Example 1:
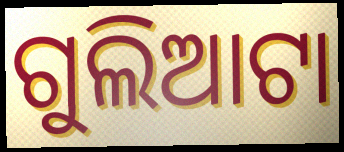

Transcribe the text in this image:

ଗୁଲିଆଟା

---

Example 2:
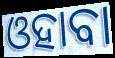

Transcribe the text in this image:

ଓହାବା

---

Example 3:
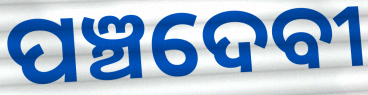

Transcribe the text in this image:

ପଞ୍ଚଦେବୀ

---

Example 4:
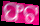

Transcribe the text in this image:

ଫଟ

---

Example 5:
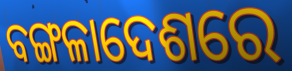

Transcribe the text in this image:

ବଙ୍ଗଳାଦେଶରେ